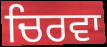
ਚਿਰਵਾ